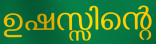
ഉഷസ്സിന്റെ